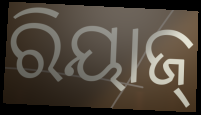
ରିୟାଜ୍